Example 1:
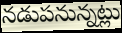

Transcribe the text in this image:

నడుపనున్నట్లు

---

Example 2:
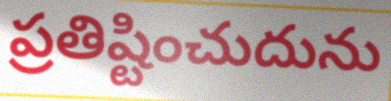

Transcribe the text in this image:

ప్రతిష్టించుదును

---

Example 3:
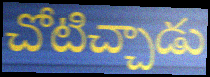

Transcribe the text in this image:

చోటిచ్చాడు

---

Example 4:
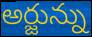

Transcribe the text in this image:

అర్జున్ను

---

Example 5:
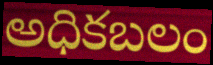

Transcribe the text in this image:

అధికబలం